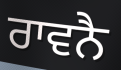
ਰਾਵਨੈ